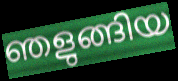
ഞളുങ്ങിയ